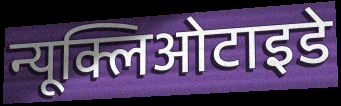
न्यूक्लिओटाइडे